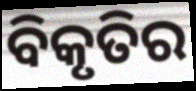
ବିକୃତିର